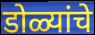
डोळ्यांचे